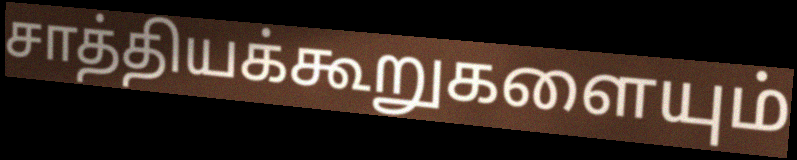
சாத்தியக்கூறுகளையும்